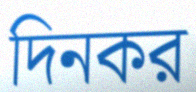
দিনকর